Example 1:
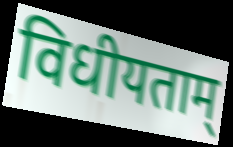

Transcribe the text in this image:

विधीयताम्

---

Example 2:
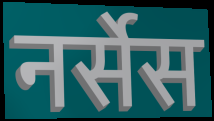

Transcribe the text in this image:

नर्सेस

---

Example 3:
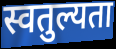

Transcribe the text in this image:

स्वतुल्यता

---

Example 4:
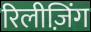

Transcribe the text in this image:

रिलीज़िंग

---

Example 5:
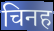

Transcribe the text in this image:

चिनह